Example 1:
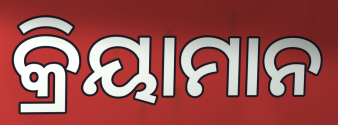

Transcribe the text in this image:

କ୍ରିୟାମାନ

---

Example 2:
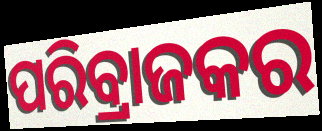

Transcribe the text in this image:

ପରିବ୍ରାଜକର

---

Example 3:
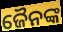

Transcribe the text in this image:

ଜୈନଙ୍କ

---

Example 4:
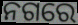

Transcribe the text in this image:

ନଗରେ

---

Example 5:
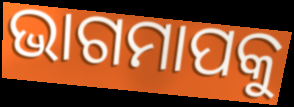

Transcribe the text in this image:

ଭାଗମାପକୁ